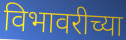
विभावरीच्या